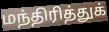
மந்திரித்துக்